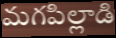
మగపిల్లాడి